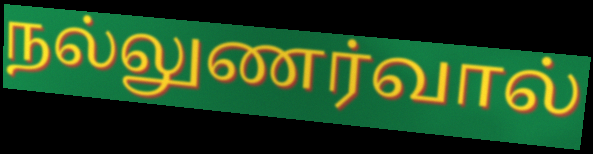
நல்லுணர்வால்